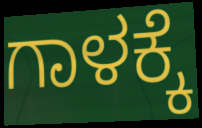
ಗಾಳಕ್ಕೆ